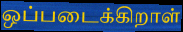
ஒப்படைக்கிறாள்